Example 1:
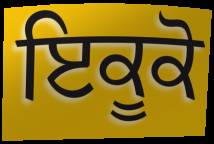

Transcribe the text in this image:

ਇਕੂਕੋ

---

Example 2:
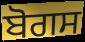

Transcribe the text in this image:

ਬੋਗਸ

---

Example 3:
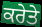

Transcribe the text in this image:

ਕਰੇਤੇ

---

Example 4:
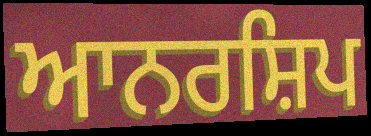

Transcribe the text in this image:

ਆਨਰਸ਼ਿਪ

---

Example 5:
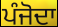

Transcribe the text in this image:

ਪੰਜੋਦਾ